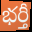
భర్తీ